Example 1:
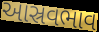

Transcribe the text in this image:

આસ્રવભાવ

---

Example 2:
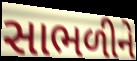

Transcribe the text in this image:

સાભળીને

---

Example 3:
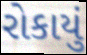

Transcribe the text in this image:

રોકાયું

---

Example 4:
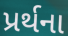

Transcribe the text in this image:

પ્રર્થના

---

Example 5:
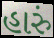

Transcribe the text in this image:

હારું